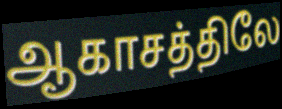
ஆகாசத்திலே